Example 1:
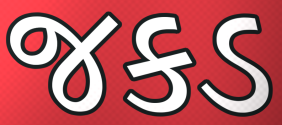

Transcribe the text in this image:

જકડ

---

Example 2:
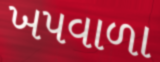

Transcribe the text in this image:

ખપવાળા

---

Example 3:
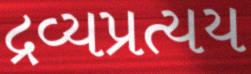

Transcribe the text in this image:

દ્રવ્યપ્રત્યય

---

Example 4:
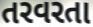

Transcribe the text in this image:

તરવરતા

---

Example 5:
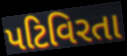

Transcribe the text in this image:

પટિવિરતા